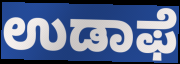
ಉಡಾಫೆ